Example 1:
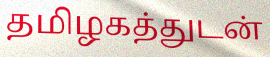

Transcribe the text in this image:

தமிழகத்துடன்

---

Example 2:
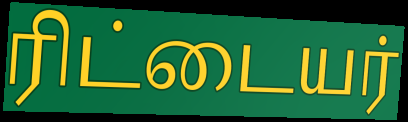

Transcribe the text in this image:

ரிட்டையர்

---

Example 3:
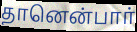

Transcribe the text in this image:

தானென்பார்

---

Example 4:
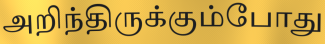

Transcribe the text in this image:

அறிந்திருக்கும்போது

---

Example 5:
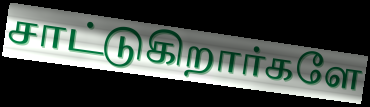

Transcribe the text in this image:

சாட்டுகிறார்களே